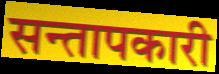
सन्तापकारी